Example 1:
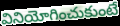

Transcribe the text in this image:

వినియోగించుకుంటే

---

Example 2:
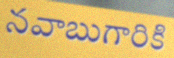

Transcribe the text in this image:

నవాబుగారికి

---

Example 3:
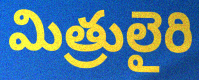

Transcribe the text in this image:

మిత్రులైరి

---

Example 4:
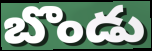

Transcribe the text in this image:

బొండు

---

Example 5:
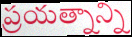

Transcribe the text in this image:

ప్రయత్నాన్ని